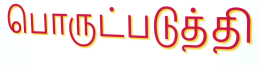
பொருட்படுத்தி